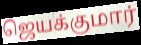
ஜெயக்குமார்